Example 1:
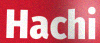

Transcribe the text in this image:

Hachi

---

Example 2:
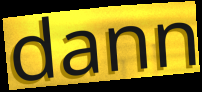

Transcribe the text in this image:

dann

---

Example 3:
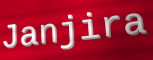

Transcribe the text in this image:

Janjira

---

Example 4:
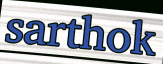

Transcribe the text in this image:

sarthok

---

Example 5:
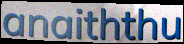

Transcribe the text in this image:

anaiththu